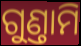
ଗୁଣ୍ତାମି